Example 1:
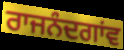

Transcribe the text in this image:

ਰਾਜਨੰਦਗਾਂਵ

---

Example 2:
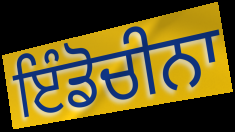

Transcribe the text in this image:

ਇੰਡੋਚੀਨਾ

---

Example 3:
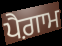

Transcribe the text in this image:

ਪੈਗ਼ਾਮ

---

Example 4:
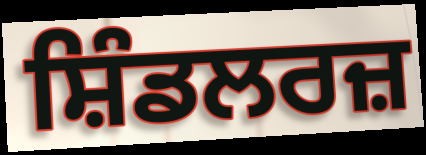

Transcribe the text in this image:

ਸ਼ਿੰਡਲਰਜ਼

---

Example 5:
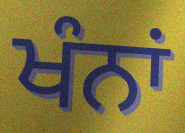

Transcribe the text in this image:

ਖੰਨਾਂ